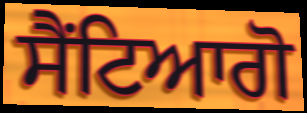
ਸੈਂਟਿਆਗੋ